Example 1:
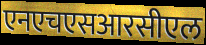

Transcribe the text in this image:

एनएचएसआरसीएल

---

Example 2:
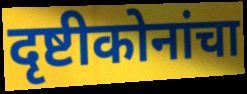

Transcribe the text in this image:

दृष्टीकोनांचा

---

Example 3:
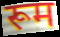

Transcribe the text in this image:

रूम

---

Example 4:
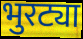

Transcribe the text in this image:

भुरट्या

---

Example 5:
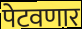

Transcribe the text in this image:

पेटवणार